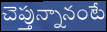
చెప్తున్నానంటే